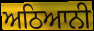
ਅਠਿਆਨੀ